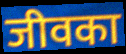
जीवका